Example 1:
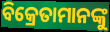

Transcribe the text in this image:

ବିକ୍ରେତାମାନଙ୍କୁ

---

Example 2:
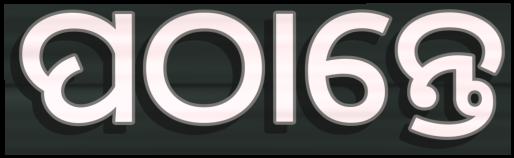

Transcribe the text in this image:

ପଠାନ୍ତେ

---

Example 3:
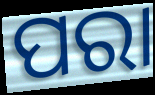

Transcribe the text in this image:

ପରା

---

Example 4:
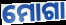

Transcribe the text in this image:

ମୋଗା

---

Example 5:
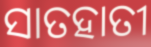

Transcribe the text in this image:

ସାତହାତୀ